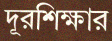
দূরশিক্ষার